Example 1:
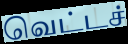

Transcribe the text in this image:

வெட்டச்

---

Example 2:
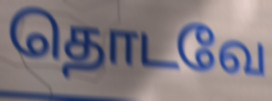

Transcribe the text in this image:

தொடவே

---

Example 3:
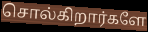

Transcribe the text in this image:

சொல்கிறார்களே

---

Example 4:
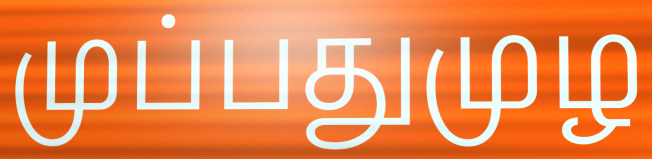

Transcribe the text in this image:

முப்பதுமுழ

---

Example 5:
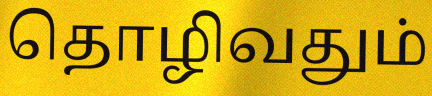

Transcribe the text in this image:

தொழிவதும்